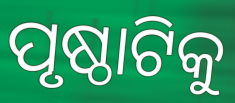
ପୃଷ୍ଠାଟିକୁ